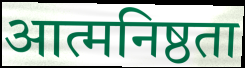
आत्मनिष्ठता